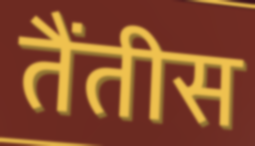
तैंतीस